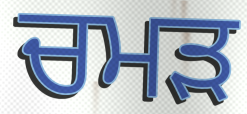
ਚਮੜ